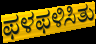
ಫಳಫಳಿಸಿತು